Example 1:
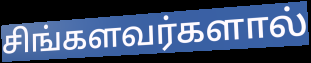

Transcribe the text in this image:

சிங்களவர்களால்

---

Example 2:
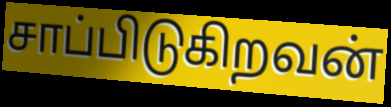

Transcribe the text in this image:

சாப்பிடுகிறவன்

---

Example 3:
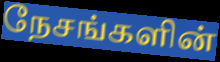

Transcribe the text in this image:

நேசங்களின்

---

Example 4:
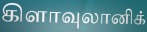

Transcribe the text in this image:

கிளாவுலானிக்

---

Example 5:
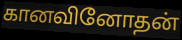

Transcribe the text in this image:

கானவினோதன்